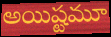
అయిష్టమూ